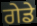
ਗੇਡੇ